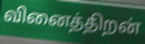
வினைத்திறன்